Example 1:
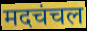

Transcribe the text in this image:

मदचंचल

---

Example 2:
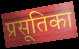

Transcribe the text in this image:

प्रसूतिका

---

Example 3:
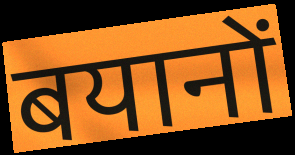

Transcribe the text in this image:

बयानों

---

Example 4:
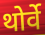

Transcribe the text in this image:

थोर्वे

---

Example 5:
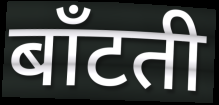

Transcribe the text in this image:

बाँटती